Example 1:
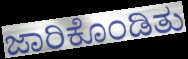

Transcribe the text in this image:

ಜಾರಿಕೊಂಡಿತು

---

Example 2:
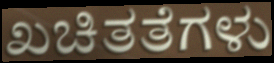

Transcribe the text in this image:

ಖಚಿತತೆಗಳು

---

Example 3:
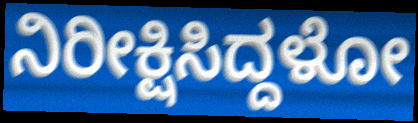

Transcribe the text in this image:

ನಿರೀಕ್ಷಿಸಿದ್ದಳೋ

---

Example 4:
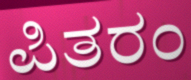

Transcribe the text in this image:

ಪಿತರಂ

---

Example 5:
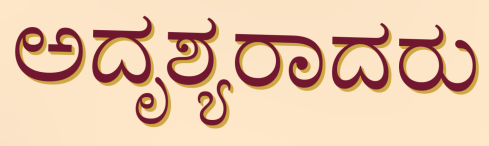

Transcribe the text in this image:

ಅದೃಶ್ಯರಾದರು